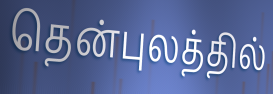
தென்புலத்தில்